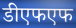
डीएफएफ